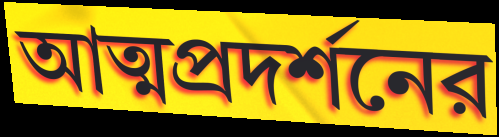
আত্মপ্রদর্শনের